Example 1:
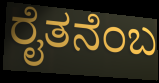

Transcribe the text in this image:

ರೈತನೆಂಬ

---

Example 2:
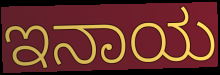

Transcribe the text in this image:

ಇನಾಯ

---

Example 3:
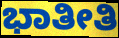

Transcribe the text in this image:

ಭಾತೀತಿ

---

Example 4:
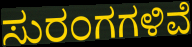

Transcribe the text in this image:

ಸುರಂಗಗಳಿವೆ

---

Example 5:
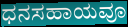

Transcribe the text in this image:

ಧನಸಹಾಯವೂ